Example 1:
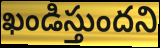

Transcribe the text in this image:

ఖండిస్తుందని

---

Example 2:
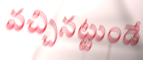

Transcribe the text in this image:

వచ్చినట్టుండే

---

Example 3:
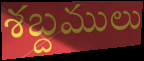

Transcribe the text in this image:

శబ్దములు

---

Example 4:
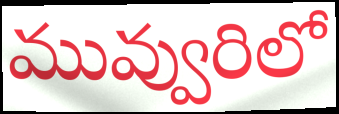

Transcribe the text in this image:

మువ్వురిలో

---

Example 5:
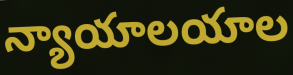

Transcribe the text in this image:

న్యాయాలయాల